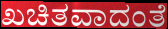
ಖಚಿತವಾದಂತೆ